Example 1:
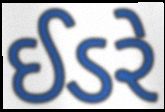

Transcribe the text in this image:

ઈડરે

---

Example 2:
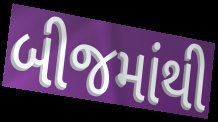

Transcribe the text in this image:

બીજમાંથી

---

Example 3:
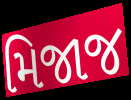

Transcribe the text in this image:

મિજાજ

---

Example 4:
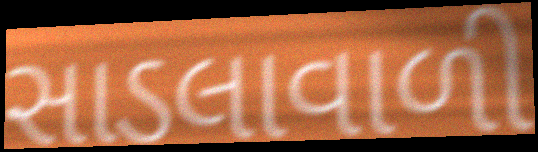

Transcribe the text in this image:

સાડલાવાળી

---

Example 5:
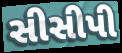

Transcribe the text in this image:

સીસીપી